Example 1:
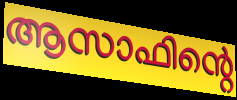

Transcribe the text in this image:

ആസാഫിന്റെ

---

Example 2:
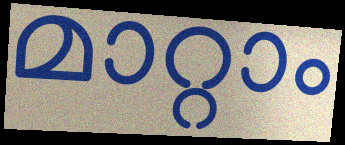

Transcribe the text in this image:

മാറ്റാം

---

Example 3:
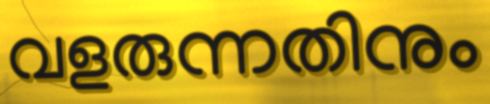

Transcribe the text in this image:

വളരുന്നതിനും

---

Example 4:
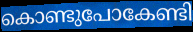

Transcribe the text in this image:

കൊണ്ടുപോകേണ്ടി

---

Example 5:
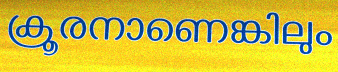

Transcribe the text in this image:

ക്രൂരനാണെങ്കിലും